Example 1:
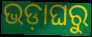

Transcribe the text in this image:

ଭଡ଼ାଘରୁ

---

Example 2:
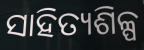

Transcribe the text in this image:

ସାହିତ୍ୟଶିଳ୍ପ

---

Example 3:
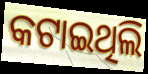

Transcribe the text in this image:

କଟାଇଥିଲି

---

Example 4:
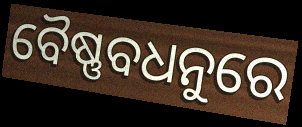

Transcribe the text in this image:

ବୈଷ୍ଣବଧନୁରେ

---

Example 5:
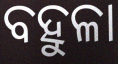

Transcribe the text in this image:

ବହୁଳା